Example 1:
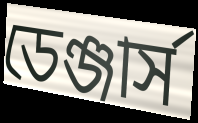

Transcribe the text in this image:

ডেঞ্জার্স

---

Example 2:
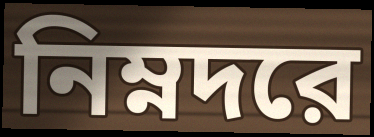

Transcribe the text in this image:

নিম্নদরে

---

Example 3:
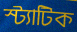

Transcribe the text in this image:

স্ট্যাটিক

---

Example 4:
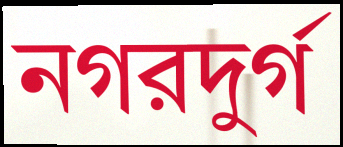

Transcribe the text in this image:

নগরদুর্গ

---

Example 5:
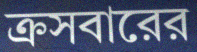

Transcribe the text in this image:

ক্রসবারের